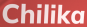
Chilika